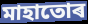
মাহাতোৰ